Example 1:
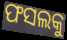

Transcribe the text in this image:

ଫସଲକୁ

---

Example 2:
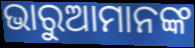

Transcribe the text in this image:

ଭାରୁଆମାନଙ୍କ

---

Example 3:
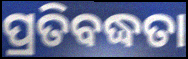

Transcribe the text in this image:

ପ୍ରତିବଦ୍ଧତା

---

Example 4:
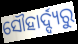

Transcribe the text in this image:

ସୌହାର୍ଦ୍ଦ୍ୟରୁ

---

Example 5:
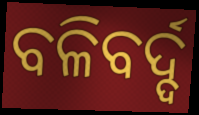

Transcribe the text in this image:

ବଳିବର୍ଦ୍ଦ